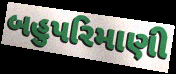
બહુપરિમાણી